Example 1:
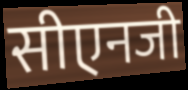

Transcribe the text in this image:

सीएनजी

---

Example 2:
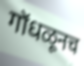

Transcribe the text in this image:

गोंधळूनच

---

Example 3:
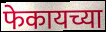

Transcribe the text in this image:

फेकायच्या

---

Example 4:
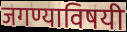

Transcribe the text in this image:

जगण्याविषयी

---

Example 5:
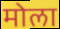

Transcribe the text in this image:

मोला